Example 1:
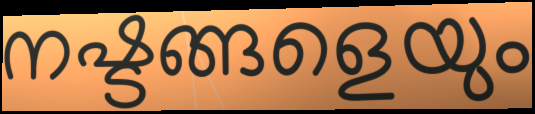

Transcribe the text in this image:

നഷ്ടങ്ങളെയും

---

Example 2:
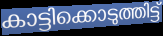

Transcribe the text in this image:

കാട്ടിക്കൊടുത്തിട്ട്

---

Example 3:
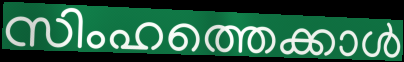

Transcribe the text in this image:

സിംഹത്തെക്കാൾ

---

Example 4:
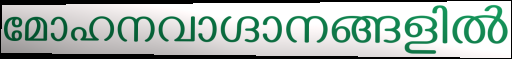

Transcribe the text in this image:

മോഹനവാഗ്ദാനങ്ങളിൽ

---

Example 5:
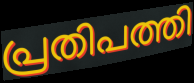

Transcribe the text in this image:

പ്രതിപത്തി